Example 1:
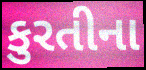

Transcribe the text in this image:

કુરતીના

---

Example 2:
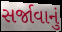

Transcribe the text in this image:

સર્જાવાનું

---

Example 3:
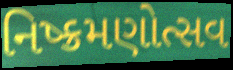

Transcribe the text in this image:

નિષ્ક્રમણોત્સવ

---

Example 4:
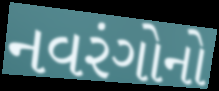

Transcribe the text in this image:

નવરંગોનો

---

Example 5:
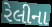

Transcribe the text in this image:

રેલીના